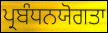
ਪ੍ਰਬੰਧਨਯੋਗਤਾ